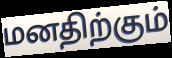
மனதிற்கும்